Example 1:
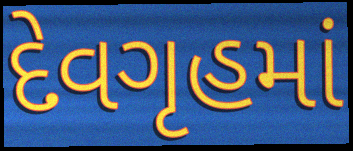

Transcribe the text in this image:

દેવગૃહમાં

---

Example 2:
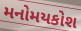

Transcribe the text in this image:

મનોમયકોશ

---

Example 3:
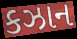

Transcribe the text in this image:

કઝાન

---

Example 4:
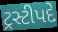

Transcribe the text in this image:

ટ્રસ્ટીપદે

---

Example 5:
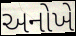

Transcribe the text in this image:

અનોખે